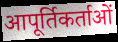
आपूर्तिकर्ताओं